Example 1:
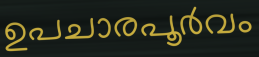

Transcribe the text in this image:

ഉപചാരപൂർവം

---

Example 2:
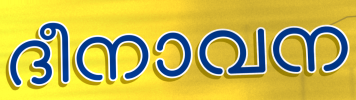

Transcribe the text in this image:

ദീനാവന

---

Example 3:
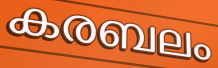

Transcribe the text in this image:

കരബലം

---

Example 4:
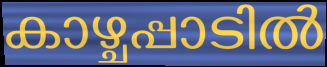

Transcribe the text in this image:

കാഴ്ചപ്പാടിൽ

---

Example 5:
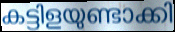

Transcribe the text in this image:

കട്ടിളയുണ്ടാക്കി